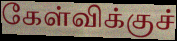
கேள்விக்குச்